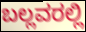
ಬಲ್ಲವರಲ್ಲಿ